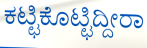
ಕಟ್ಟಿಕೊಟ್ಟಿದ್ದೀರಾ